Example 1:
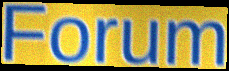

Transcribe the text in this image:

Forum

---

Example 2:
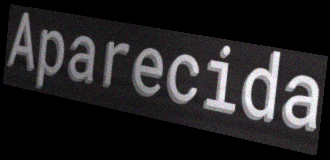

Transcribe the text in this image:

Aparecida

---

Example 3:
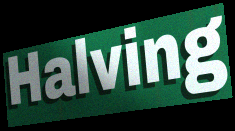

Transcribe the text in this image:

Halving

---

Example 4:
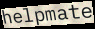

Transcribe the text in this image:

helpmate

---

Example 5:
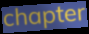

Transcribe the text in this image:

chapter